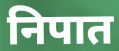
निपात